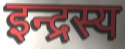
इन्द्रस्य